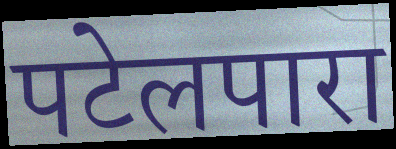
पटेलपारा